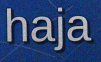
haja